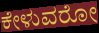
ಕೇಳುವರೋ